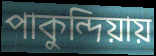
পাকুন্দিয়ায়